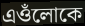
এওঁলোকে